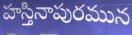
హస్తినాపురమున